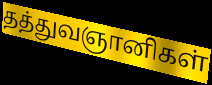
தத்துவஞானிகள்